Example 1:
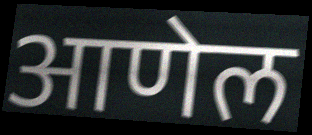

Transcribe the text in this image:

आणेल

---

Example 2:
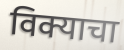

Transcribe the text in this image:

विक्याचा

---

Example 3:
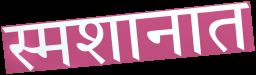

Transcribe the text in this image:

स्मशानात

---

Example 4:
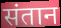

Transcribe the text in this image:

संतान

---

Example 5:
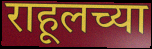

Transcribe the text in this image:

राहूलच्या